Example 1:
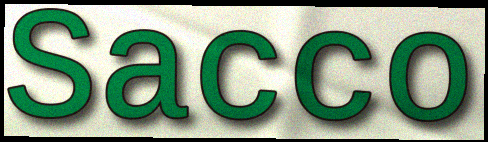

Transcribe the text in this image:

Sacco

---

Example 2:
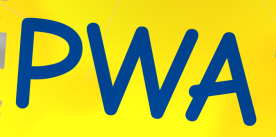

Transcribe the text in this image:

PWA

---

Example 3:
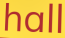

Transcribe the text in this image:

hall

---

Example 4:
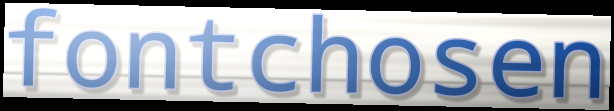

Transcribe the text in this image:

fontchosen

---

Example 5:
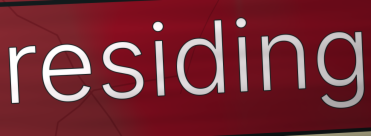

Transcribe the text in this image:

residing